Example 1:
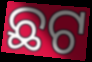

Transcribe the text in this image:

ଛଟ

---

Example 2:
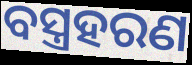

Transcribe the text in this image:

ବସ୍ତ୍ରହରଣ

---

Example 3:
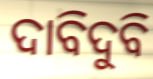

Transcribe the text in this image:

ଦାବିଦୁବି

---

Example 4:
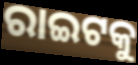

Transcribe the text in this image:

ରାଇଟକୁ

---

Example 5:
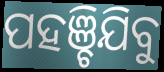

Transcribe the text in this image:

ପହଞ୍ଚିଯିବୁ